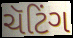
ચૅટિંગ